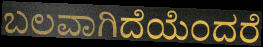
ಬಲವಾಗಿದೆಯೆಂದರೆ